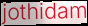
jothidam